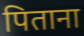
पिताना